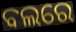
ବଲରେ